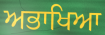
ਅਭਾਖਿਆ